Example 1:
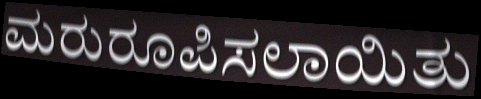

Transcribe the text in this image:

ಮರುರೂಪಿಸಲಾಯಿತು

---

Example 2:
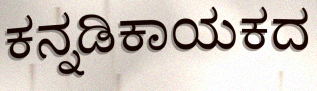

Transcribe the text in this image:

ಕನ್ನಡಿಕಾಯಕದ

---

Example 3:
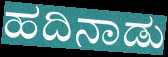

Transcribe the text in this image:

ಹದಿನಾಡು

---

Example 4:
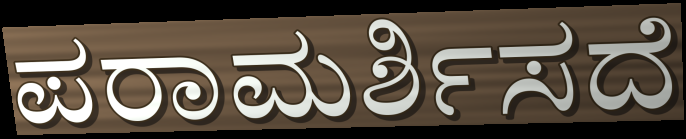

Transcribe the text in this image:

ಪರಾಮರ್ಶಿಸದೆ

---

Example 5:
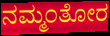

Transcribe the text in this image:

ನಮ್ಮಂತೋರ